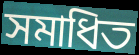
সমাধিত